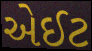
એઈટ